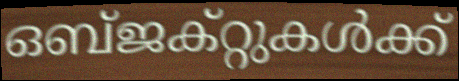
ഒബ്ജക്റ്റുകൾക്ക്